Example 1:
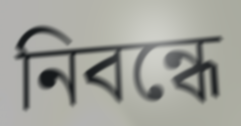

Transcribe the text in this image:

নিবন্ধে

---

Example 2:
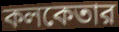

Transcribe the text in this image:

কলকেতার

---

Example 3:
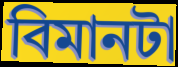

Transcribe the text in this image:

বিমানটা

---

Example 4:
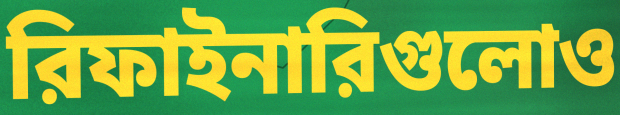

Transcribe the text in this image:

রিফাইনারিগুলোও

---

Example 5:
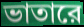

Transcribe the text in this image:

ভাতারে